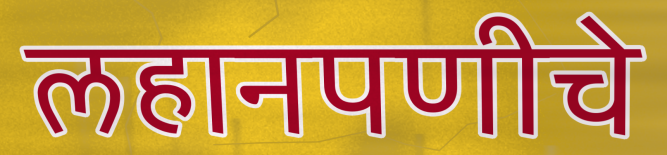
लहानपणीचे